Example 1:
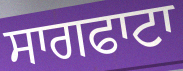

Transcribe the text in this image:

ਸਾਗਫਾਟਾ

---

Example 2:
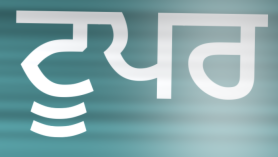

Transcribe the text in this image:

ਟੂਪਰ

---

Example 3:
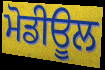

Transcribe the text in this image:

ਮੋਡੀਊਲ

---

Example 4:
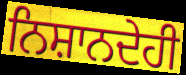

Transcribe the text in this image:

ਨਿਸ਼ਾਨਦੇਹੀ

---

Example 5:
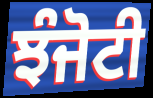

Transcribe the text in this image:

ਝੰਜੋਟੀ